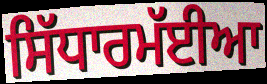
ਸਿੱਧਾਰਮੱਈਆ